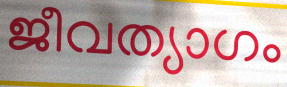
ജീവത്യാഗം